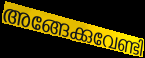
അങ്ങേക്കുവേണ്ടി